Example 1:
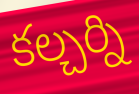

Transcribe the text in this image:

కల్చర్ని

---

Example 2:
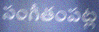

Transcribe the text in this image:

సంగీతంపట్ల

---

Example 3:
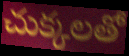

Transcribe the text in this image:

చుక్కలతో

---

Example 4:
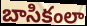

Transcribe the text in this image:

బాసికంలా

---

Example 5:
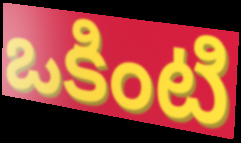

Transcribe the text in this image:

ఒకింటి